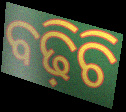
ବଢ଼ିଚି